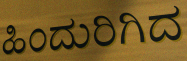
ಹಿಂದುರಿಗಿದ